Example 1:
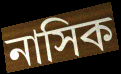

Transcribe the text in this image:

নাসিক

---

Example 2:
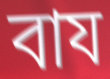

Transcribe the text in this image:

বায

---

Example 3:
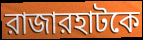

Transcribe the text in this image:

রাজারহাটকে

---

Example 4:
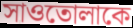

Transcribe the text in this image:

সাওতোলাকে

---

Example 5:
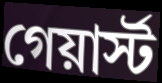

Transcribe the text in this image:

গেয়ার্স্ট